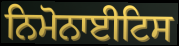
ਨਿਮੋਨਾਈਟਿਸ